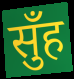
सुँह